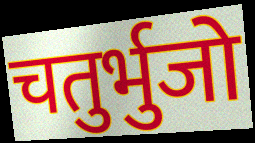
चतुर्भुजो